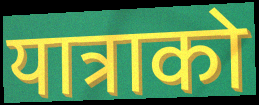
यात्राको